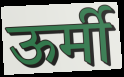
ऊर्मी